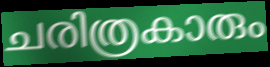
ചരിത്രകാരും